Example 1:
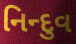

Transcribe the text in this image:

નિન્દુવ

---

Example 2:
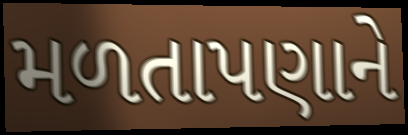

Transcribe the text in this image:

મળતાપણાને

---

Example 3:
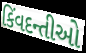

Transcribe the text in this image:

કિંવદન્તીઓ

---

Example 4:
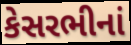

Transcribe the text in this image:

કેસરભીનાં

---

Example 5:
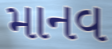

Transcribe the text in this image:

માનવ